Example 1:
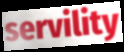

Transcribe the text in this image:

servility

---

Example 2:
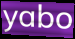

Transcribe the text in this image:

yabo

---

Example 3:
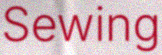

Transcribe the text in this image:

Sewing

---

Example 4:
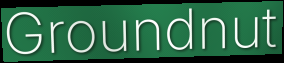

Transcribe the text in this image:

Groundnut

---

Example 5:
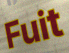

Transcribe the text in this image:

Fuit